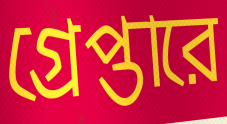
গ্রেপ্তারে